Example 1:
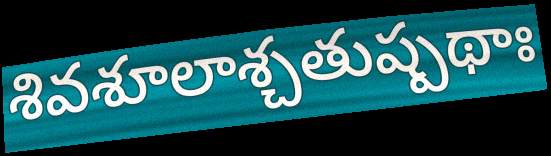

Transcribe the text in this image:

శివశూలాశ్చతుష్పథాః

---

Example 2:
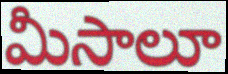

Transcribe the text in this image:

మీసాలూ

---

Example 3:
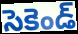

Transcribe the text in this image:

సెకెండ్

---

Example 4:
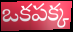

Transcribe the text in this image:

ఒకపక్క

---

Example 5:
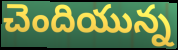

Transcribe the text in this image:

చెందియున్న